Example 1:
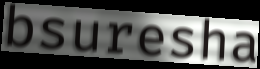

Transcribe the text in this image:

bsuresha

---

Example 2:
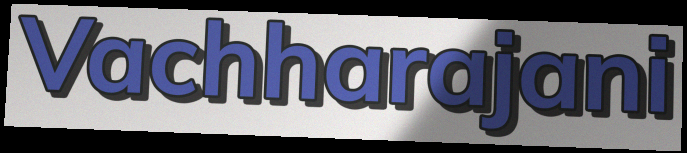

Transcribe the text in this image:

Vachharajani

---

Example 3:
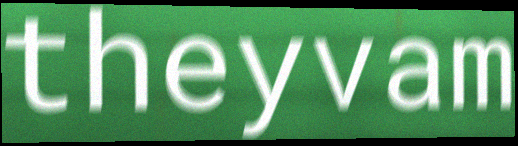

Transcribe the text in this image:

theyvam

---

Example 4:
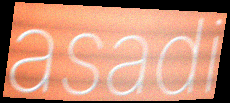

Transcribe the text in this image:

asadi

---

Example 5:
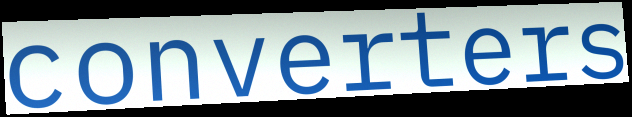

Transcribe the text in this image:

converters